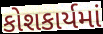
કોશકાર્યમાં